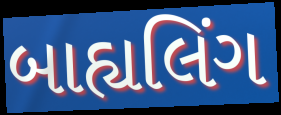
બાહ્યલિંગ